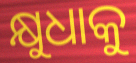
କ୍ଷୁଧାକୁ